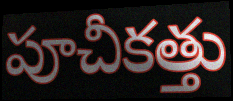
పూచీకత్తు